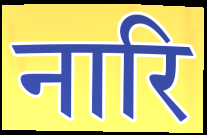
नारि